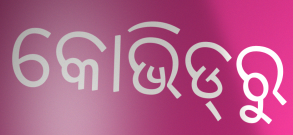
କୋଭିଡ୍‌ରୁ